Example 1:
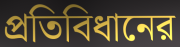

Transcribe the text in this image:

প্রতিবিধানের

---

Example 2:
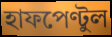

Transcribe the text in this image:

হাফপেণ্টুল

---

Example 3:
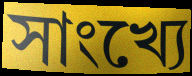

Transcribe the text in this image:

সাংখ্যে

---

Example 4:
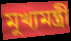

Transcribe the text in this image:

মুখ্য়মন্ত্রী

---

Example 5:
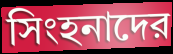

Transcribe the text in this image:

সিংহনাদের